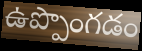
ఉప్పొంగడం